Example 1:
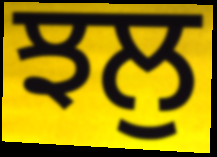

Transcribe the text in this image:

ਝਲੁ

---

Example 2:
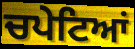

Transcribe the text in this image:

ਚਪੇਟਿਆਂ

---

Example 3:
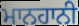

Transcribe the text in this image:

ਮਾਨਹਾਨੀ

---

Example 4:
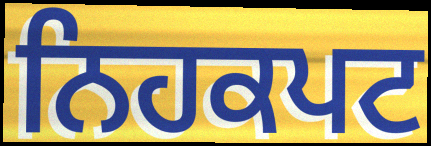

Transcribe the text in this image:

ਨਿਹਕਪਟ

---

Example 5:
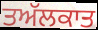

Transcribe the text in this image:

ਤਅੱਲਕਾਤ